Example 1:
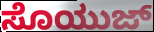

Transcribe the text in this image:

ಸೊಯುಜ್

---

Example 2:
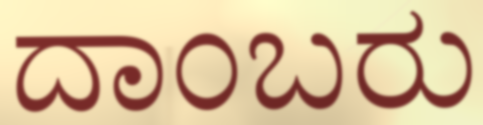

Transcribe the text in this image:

ದಾಂಬರು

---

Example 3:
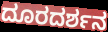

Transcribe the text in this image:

ದೂರದರ್ಶನ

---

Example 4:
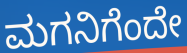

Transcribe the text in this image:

ಮಗನಿಗೆಂದೇ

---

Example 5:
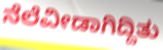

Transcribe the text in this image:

ನೆಲೆವೀಡಾಗಿದ್ದಿತು